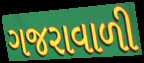
ગજરાવાળી